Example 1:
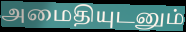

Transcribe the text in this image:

அமைதியுடனும்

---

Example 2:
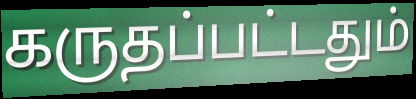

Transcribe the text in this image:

கருதப்பட்டதும்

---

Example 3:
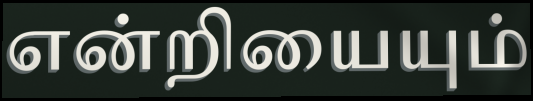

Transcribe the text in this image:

என்றியையும்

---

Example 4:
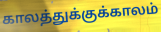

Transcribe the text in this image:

காலத்துக்குக்காலம்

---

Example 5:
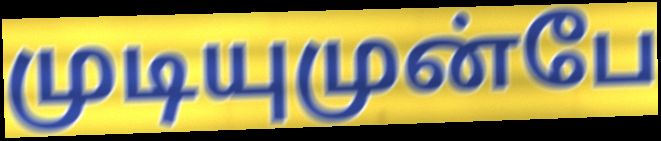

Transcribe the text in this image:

முடியுமுன்பே